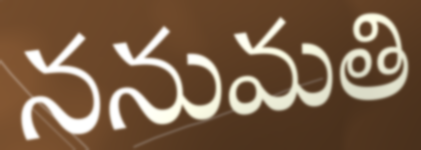
ననుమతి